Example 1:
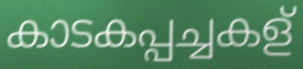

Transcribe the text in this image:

കാടകപ്പച്ചകള്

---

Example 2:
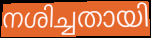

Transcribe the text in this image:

നശിച്ചതായി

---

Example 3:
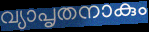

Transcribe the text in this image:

വ്യാപൃതനാകും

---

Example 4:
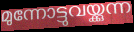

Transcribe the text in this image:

മുന്നോട്ടുവയ്ക്കുന്ന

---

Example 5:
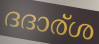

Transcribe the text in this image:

ദദാര്ശ